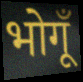
भोगूँ